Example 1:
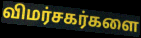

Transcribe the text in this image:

விமர்சகர்களை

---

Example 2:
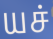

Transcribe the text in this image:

யச்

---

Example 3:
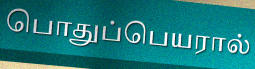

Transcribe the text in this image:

பொதுப்பெயரால்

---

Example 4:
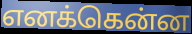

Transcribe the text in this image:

எனக்கென்ன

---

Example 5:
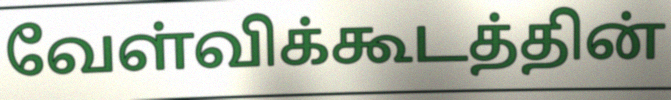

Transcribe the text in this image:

வேள்விக்கூடத்தின்